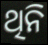
ଥିନି